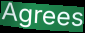
Agrees